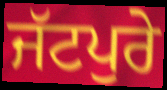
ਜੱਟਪੁਰੇ